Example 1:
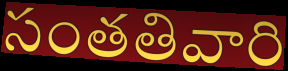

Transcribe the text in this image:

సంతతివారి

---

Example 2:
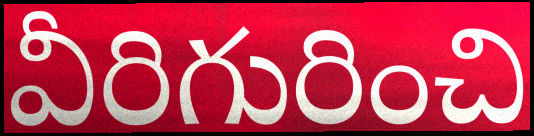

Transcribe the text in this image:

వీరిగురించి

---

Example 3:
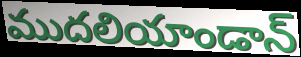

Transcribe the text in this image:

ముదలియాండాన్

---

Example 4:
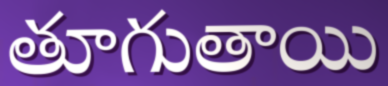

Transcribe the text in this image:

తూగుతాయి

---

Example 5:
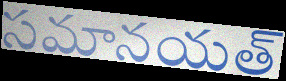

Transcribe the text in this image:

సమానయత్